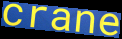
crane